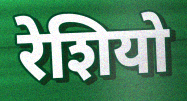
रेशियो